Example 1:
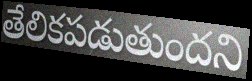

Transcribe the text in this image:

తేలికపడుతుందని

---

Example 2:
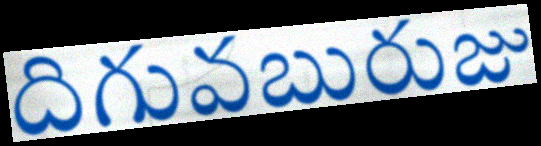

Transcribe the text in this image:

దిగువబురుజు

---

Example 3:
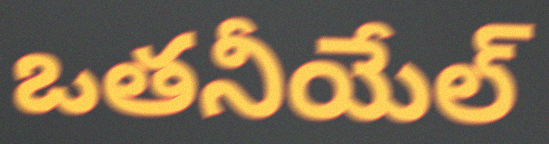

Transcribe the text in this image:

ఒతనీయేల్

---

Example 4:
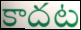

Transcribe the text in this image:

కాదట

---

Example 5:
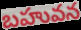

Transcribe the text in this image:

బహువన